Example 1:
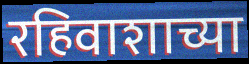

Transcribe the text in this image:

रहिवाशाच्या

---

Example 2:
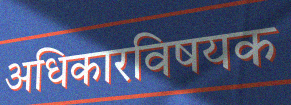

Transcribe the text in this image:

अधिकारविषयक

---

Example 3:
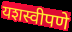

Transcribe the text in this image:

यशस्वीपणे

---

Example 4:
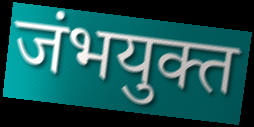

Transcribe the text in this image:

जंभयुक्त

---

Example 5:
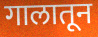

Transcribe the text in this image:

गालातून